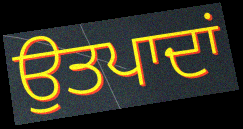
ਉਤਪਾਦਾਂ